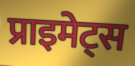
प्राइमेट्स